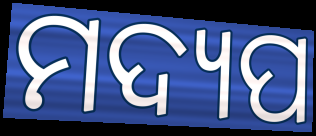
ମଦ୍ୟପ